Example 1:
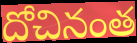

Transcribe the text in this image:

దోచినంత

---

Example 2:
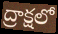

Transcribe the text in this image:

ద్రాక్షలో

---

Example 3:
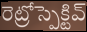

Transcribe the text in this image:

రెట్రోస్పెక్టివ్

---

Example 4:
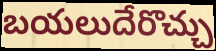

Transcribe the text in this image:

బయలుదేరొచ్చు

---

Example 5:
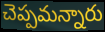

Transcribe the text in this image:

చెప్పమన్నారు